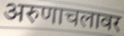
अरुणाचलावर